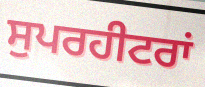
ਸੁਪਰਹੀਟਰਾਂ